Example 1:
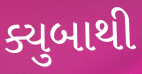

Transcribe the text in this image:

ક્યુબાથી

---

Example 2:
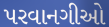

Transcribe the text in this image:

પરવાનગીઓ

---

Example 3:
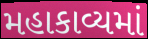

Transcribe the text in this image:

મહાકાવ્યમાં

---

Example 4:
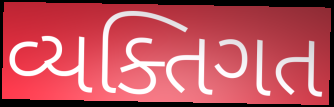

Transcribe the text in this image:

વ્યક્તિગત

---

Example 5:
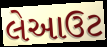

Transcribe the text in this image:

લેઆઉટ